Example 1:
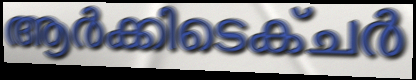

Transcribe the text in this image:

ആർക്കിടെക്ചർ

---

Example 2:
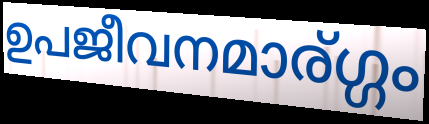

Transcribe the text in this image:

ഉപജീവനമാര്ഗ്ഗം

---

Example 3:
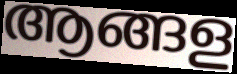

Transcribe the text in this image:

ആങ്ങള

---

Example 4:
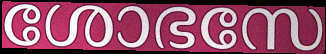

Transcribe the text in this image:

ശോഭസേ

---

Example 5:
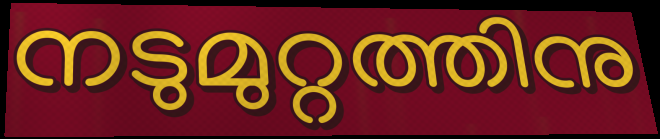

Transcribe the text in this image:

നടുമുറ്റത്തിനു